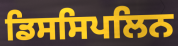
ਡਿਸਸਿਪਲਿਨ